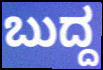
ಬುದ್ದ